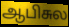
ஆபிசுல